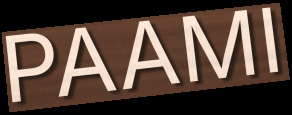
PAAMI